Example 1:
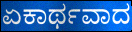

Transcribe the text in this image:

ಏಕಾರ್ಥವಾದ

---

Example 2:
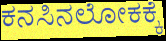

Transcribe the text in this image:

ಕನಸಿನಲೋಕಕ್ಕೆ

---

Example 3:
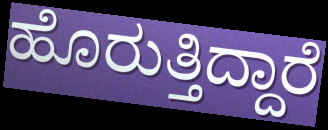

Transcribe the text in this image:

ಹೊರುತ್ತಿದ್ದಾರೆ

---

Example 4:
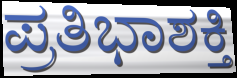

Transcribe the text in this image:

ಪ್ರತಿಭಾಶಕ್ತಿ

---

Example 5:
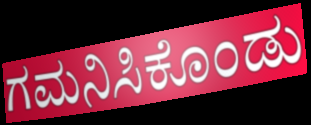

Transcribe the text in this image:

ಗಮನಿಸಿಕೊಂಡು